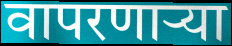
वापरणार्‍या